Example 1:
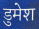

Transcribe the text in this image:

डुमेश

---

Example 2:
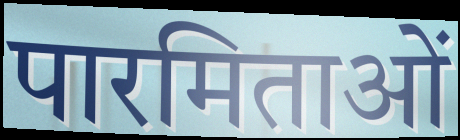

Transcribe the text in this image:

पारमिताओं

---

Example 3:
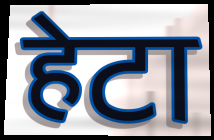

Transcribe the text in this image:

हेटा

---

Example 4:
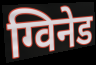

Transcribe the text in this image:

ग्विनेड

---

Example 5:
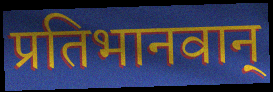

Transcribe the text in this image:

प्रतिभानवान्